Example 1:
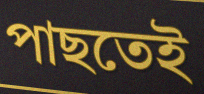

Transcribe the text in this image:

পাছতেই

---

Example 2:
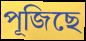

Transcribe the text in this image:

পূজিছে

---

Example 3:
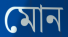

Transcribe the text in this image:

মোন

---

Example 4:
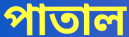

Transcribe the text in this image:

পাতাল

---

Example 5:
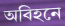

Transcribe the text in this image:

অবিহনে